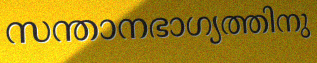
സന്താനഭാഗ്യത്തിനു